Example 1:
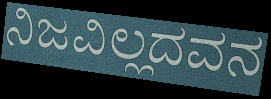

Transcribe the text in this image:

ನಿಜವಿಲ್ಲದವನ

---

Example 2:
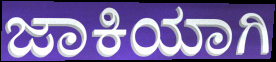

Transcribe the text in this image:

ಜಾಕಿಯಾಗಿ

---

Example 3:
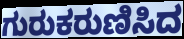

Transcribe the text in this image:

ಗುರುಕರುಣಿಸಿದ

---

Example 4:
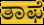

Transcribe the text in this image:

ತಾಫೆ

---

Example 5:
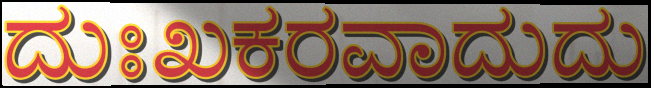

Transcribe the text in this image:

ದುಃಖಕರವಾದುದು